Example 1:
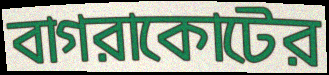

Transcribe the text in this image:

বাগরাকোটের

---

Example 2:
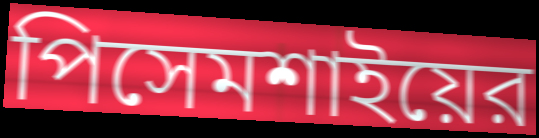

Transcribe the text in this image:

পিসেমশাইয়ের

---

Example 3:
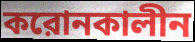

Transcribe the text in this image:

করোনকালীন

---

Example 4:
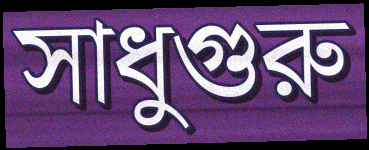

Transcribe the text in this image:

সাধুগুরু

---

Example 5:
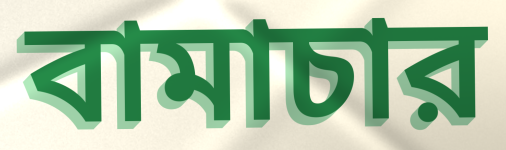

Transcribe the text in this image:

বামাচার